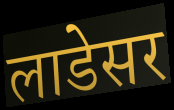
लाडेसर